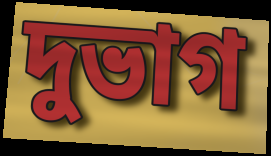
দুভাগ